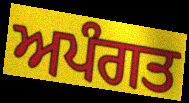
ਅਪੰਗਤ